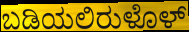
ಬಡಿಯಲಿರುಳೊಳ್